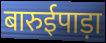
बारुईपाड़ा